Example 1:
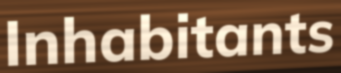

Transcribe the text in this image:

Inhabitants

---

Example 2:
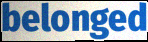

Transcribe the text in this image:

belonged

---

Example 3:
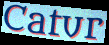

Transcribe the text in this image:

Catur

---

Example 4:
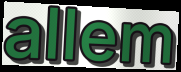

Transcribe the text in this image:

allem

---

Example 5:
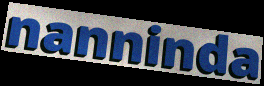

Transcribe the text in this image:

nanninda